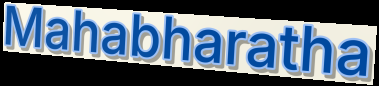
Mahabharatha